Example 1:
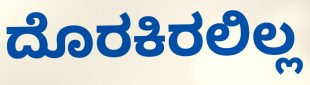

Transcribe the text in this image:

ದೊರಕಿರಲಿಲ್ಲ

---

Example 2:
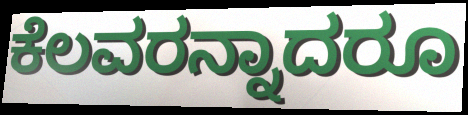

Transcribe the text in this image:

ಕೆಲವರನ್ನಾದರೂ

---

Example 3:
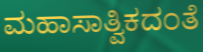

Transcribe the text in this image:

ಮಹಾಸಾತ್ವಿಕದಂತೆ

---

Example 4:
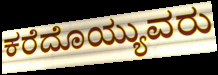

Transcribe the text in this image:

ಕರೆದೊಯ್ಯುವರು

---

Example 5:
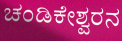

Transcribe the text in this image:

ಚಂಡಿಕೇಶ್ವರನ